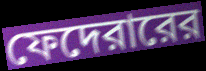
ফেদেরারের